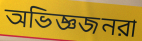
অভিজ্ঞজনরা